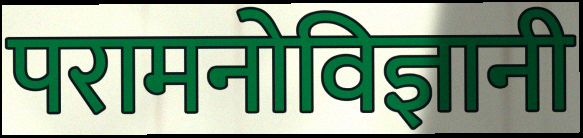
परामनोविज्ञानी